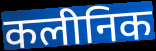
कलीनिक